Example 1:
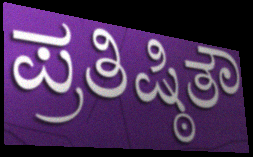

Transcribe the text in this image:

ಪ್ರತಿಷ್ಠಿತೌ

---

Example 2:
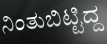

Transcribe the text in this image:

ನಿಂತುಬಿಟ್ಟಿದ್ದ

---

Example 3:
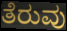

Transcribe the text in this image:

ತೆರುವು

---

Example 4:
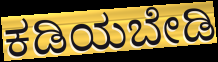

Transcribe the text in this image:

ಕಡಿಯಬೇಡಿ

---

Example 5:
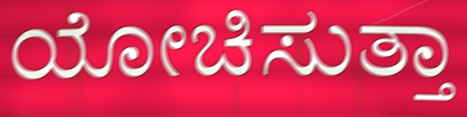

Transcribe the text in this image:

ಯೋಚಿಸುತ್ತಾ